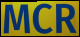
MCR